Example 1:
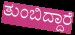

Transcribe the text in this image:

ತುಂಬಿದ್ದಾರೆ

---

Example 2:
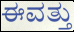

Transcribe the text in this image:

ಈವತ್ತು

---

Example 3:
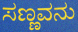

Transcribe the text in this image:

ಸಣ್ಣವನು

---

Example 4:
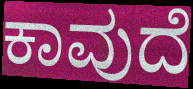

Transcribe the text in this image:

ಕಾವುದೆ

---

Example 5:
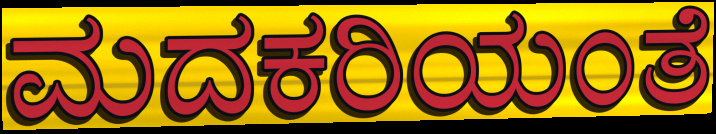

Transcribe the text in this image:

ಮದಕರಿಯಂತೆ